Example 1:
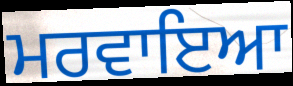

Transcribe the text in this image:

ਮਰਵਾਇਆ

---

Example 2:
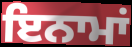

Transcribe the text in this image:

ਇਨਾਮਾਂ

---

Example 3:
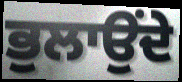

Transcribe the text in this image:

ਭੁਲਾਉਂਦੇ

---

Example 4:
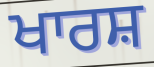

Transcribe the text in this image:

ਖਾਰਸ਼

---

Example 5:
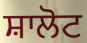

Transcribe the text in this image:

ਸ਼ਾਲੋਟ